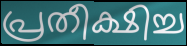
പ്രതീക്ഷിച്ച